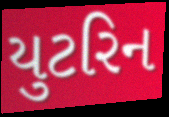
યુટરિન